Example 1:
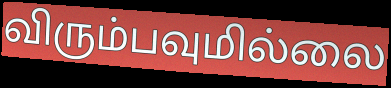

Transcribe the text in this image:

விரும்பவுமில்லை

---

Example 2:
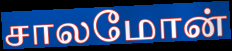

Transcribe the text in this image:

சாலமோன்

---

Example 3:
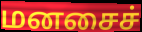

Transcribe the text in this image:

மனசைச்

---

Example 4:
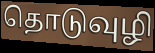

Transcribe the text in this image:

தொடுவுழி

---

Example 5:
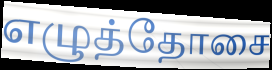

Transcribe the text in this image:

எழுத்தோசை